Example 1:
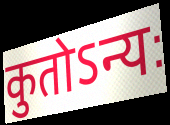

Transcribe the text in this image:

कुतोऽन्यः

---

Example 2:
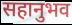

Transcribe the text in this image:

सहानुभव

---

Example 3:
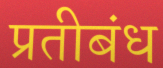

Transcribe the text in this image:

प्रतीबंध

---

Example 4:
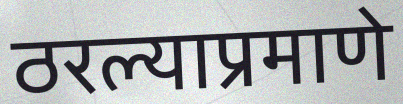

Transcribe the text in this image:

ठरल्याप्रमाणे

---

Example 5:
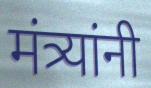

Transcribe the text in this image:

मंत्र्यांनी